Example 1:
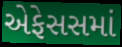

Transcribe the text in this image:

એફેસસમાં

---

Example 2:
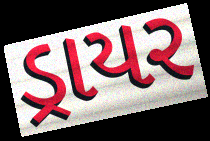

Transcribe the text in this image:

ડ્રાયર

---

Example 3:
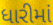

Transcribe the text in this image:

ધારીમાં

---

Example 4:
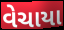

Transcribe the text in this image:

વેચાયા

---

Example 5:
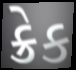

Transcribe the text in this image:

ક્રેક